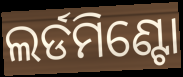
ଲର୍ଡମିଣ୍ଟୋ